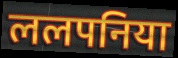
ललपनिया